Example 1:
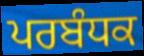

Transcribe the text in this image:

ਪਰਬੰਧਕ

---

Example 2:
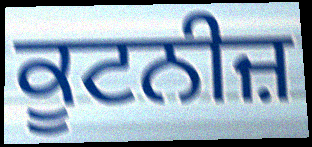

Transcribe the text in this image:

ਕੂਟਨੀਜ਼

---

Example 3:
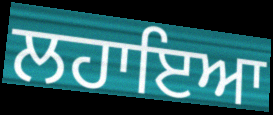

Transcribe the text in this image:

ਲਹਾਇਆ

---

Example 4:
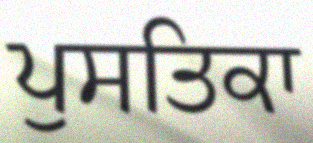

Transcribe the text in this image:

ਪੁਸਤਿਕਾ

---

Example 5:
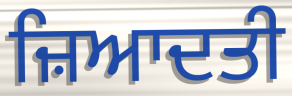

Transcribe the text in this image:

ਜ਼ਿਆਦਤੀ